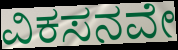
ವಿಕಸನವೇ